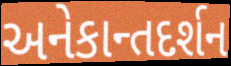
અનેકાન્તદર્શન